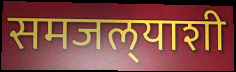
समजल्याशी